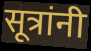
सूत्रांनी